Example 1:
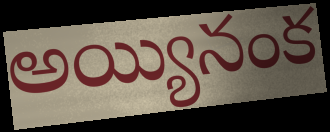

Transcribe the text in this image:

అయ్యినంక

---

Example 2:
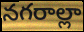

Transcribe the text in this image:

నగరాల్లా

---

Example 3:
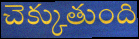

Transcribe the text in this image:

చెక్కుతుంది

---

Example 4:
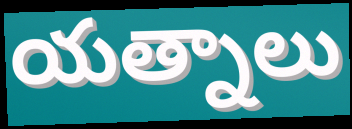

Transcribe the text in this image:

యత్నాలు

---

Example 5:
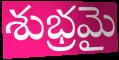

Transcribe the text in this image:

శుభ్రమై